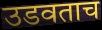
उडवताच